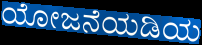
ಯೋಜನೆಯಡಿಯ